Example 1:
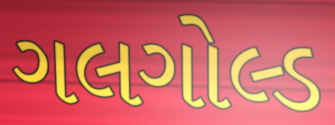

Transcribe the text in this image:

ગલગોલ્ડ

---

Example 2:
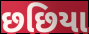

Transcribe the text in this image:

છછિયા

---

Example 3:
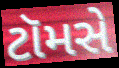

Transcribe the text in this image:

ટૉમસે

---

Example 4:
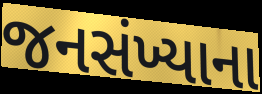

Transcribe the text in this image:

જનસંખ્યાના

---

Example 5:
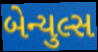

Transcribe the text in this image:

બેન્યુલ્સ